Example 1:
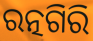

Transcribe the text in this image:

ରତ୍ନଗିରି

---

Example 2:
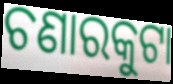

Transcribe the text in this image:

ଚଣାରକୁଟା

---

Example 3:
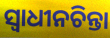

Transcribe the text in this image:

ସ୍ଵାଧୀନଚିନ୍ତା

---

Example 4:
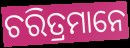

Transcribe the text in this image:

ଚରିତ୍ରମାନେ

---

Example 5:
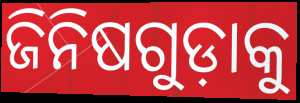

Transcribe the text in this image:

ଜିନିଷଗୁଡ଼ାକୁ